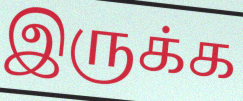
இருக்க